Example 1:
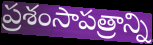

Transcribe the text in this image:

ప్రశంసాపత్రాన్ని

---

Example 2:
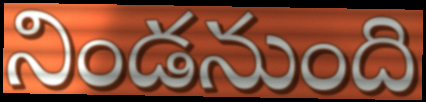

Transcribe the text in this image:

నిండనుంది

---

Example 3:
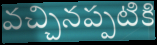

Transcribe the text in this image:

వచ్చినప్పటికి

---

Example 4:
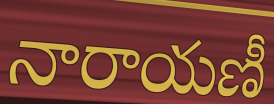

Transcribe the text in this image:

నారాయణీ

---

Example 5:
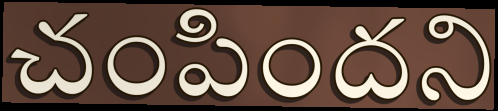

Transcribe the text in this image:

చంపిందని